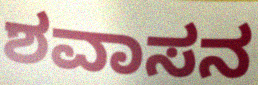
ಶವಾಸನ